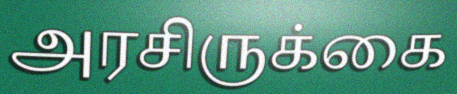
அரசிருக்கை